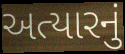
અત્યારનું